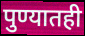
पुण्यातही